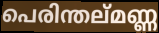
പെരിന്തല്മണ്ണ